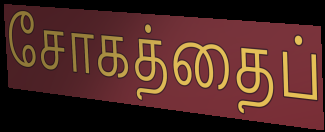
சோகத்தைப்